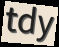
tdy